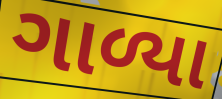
ગાળ્યા